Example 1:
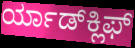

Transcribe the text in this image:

ರ್ಯಾಡ್‍ಕ್ಲಿಫ್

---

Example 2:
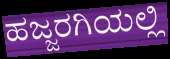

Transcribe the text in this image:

ಹಜ್ಜರಗಿಯಲ್ಲಿ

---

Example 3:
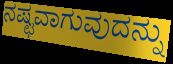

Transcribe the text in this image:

ನಷ್ಟವಾಗುವುದನ್ನು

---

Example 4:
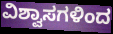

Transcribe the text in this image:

ವಿಶ್ವಾಸಗಳಿಂದ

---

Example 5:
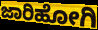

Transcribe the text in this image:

ಜಾರಿಹೋಗಿ